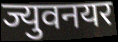
ज्युवनयर